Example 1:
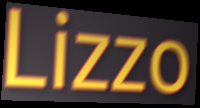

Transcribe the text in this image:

Lizzo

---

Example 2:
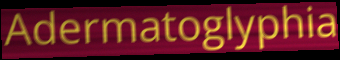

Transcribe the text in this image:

Adermatoglyphia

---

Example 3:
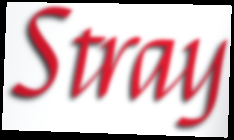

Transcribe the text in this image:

Stray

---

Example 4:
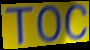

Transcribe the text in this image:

TOC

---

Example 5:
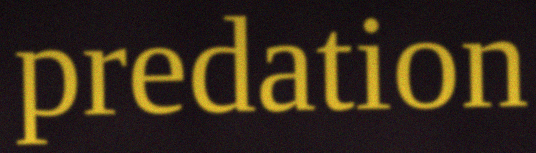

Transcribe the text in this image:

predation